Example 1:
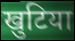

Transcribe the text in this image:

खुटिया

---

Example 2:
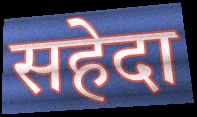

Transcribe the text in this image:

सहेदा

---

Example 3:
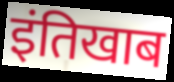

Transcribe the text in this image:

इंतिखाब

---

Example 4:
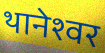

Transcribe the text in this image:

थानेश्वर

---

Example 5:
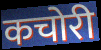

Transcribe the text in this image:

कचोरी